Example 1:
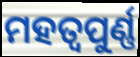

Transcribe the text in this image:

ମହତ୍ୱପୁର୍ଣ୍ଣ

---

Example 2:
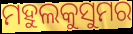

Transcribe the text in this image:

ମହୁଲକୁସୁମର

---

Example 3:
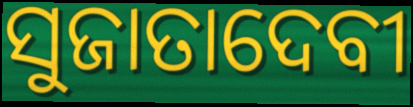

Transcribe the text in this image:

ସୁଜାତାଦେବୀ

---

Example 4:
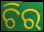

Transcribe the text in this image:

ଚିର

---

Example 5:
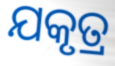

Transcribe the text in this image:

ଯକୃତ୍ର